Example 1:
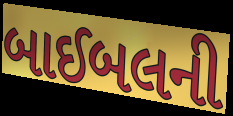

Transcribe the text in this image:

બાઈબલની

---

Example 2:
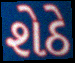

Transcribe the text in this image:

શેઠે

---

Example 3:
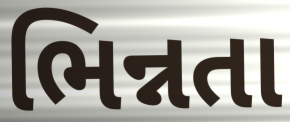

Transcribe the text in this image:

ભિન્નતા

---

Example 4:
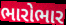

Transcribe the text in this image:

ભારોભાર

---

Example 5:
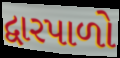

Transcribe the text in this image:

દ્વારપાળો